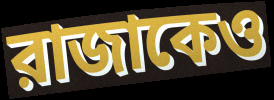
রাজাকেও